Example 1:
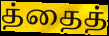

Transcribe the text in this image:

த்தைத்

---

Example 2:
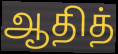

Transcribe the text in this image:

ஆதித்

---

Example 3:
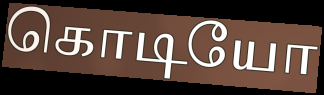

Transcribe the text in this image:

கொடியோ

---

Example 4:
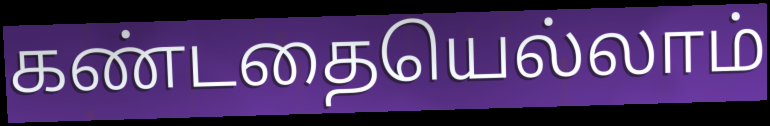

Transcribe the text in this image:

கண்டதையெல்லாம்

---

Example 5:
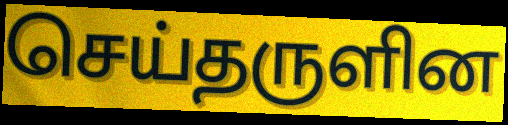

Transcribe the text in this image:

செய்தருளின